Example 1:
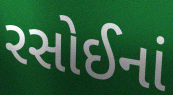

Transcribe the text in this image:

રસોઈનાં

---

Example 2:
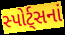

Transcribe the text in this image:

સ્પોર્ટ્સનાં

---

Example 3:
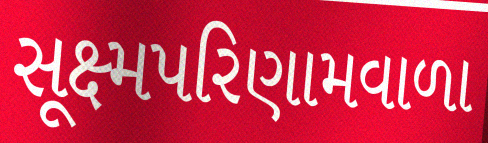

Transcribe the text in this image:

સૂક્ષ્મપરિણામવાળા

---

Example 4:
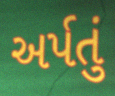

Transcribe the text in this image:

અર્પતું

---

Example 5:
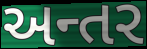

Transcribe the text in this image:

અન્તર